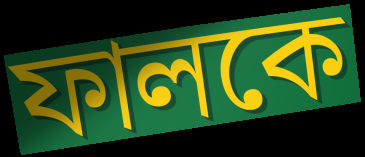
ফালকে